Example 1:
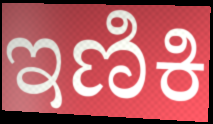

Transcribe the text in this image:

ಇಣಿಕಿ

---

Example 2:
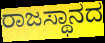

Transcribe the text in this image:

ರಾಜಸ್ಥಾನದ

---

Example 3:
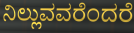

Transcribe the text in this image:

ನಿಲ್ಲುವವರೆಂದರೆ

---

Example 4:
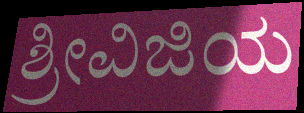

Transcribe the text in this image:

ಶ್ರೀವಿಜಿಯ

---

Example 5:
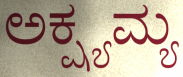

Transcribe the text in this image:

ಅಕ್ಷ್ಯಮ್ಯ